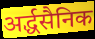
अर्द्धसैनिक